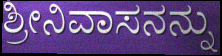
ಶ್ರೀನಿವಾಸನನ್ನು